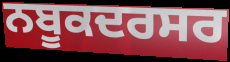
ਨਬੂਕਦਰਸਰ